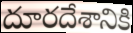
దూరదేశానికి